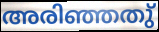
അരിഞ്ഞതു്